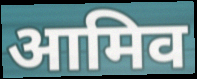
आमिव